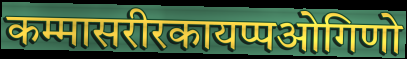
कम्मासरीरकायप्पओगिणो